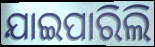
ଯାଇପାରିଲି